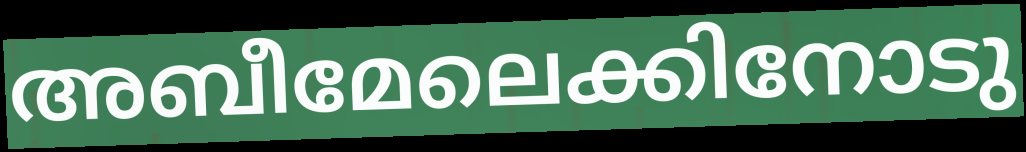
അബീമേലെക്കിനോടു